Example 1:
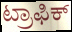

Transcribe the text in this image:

ಟ್ರಾಫಿಕ್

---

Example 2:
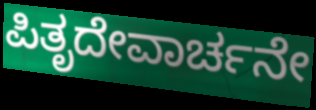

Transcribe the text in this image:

ಪಿತೃದೇವಾರ್ಚನೇ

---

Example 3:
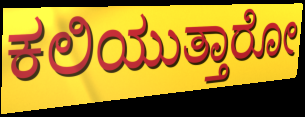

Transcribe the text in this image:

ಕಲಿಯುತ್ತಾರೋ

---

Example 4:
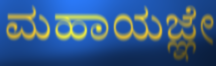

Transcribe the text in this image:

ಮಹಾಯಜ್ಞೇ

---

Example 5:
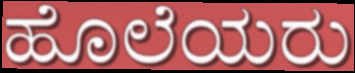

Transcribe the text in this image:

ಹೊಲೆಯರು